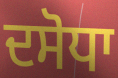
ਦਸੋਧਾ